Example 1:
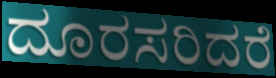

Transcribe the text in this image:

ದೂರಸರಿದರೆ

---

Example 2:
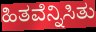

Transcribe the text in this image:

ಹಿತವೆನ್ನಿಸಿತು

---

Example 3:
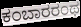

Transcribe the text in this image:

ಕಂಬಾರರಂಥ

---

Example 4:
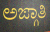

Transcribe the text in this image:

ಅಙ್ಗಾತಿ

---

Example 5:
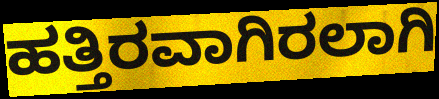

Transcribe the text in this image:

ಹತ್ತಿರವಾಗಿರಲಾಗಿ